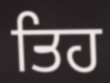
ਤਿਹ